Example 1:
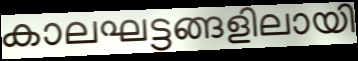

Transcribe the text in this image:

കാലഘട്ടങ്ങളിലായി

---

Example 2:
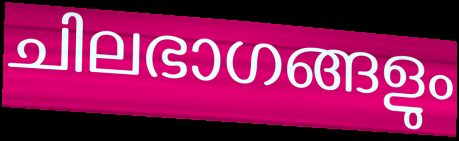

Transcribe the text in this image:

ചിലഭാഗങ്ങളും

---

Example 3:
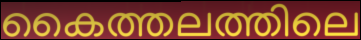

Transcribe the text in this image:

കൈത്തലത്തിലെ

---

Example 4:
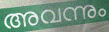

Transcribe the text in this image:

അവന്നും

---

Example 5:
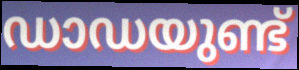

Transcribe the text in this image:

ഡാഡയുണ്ട്